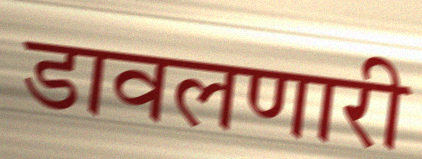
डावलणारी